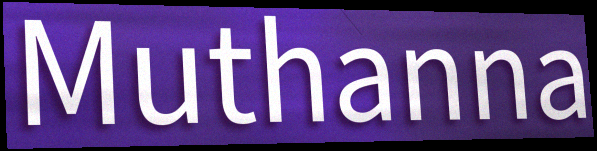
Muthanna